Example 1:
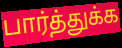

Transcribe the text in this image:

பார்த்துக்க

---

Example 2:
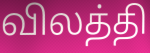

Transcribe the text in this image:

விலத்தி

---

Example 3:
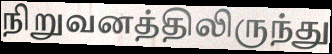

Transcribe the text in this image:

நிறுவனத்திலிருந்து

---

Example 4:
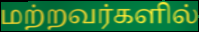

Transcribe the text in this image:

மற்றவர்களில்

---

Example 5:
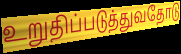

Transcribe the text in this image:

உறுதிப்படுத்துவதோடு